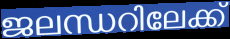
ജലന്ധറിലേക്ക്